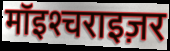
मॉइश्चराइज़र